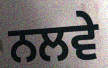
ਨਲਵੇ